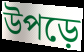
উপড়ে